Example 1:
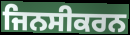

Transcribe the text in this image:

ਜਿਨਸੀਕਰਨ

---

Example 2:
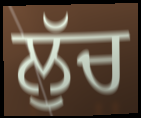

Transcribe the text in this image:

ਲੁੱਚ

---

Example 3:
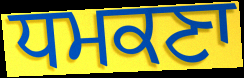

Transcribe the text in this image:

ਧਮਕਣਾ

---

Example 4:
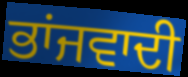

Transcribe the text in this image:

ਭਾਂਜਵਾਦੀ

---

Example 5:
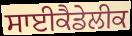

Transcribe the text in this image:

ਸਾਈਕੈਡੇਲੀਕ